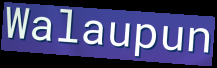
Walaupun